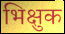
भिक्षुक